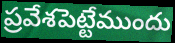
ప్రవేశపెట్టేముందు